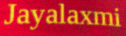
Jayalaxmi